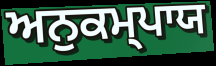
ਅਨੁਕਮ੍ਪਾਯ